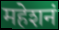
महेशनं